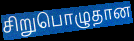
சிறுபொழுதான